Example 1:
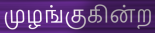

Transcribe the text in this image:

முழங்குகின்ற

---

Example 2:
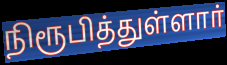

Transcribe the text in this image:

நிரூபித்துள்ளார்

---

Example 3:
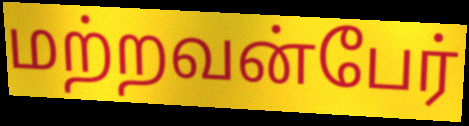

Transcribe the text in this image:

மற்றவன்பேர்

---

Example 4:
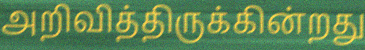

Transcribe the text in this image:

அறிவித்திருக்கின்றது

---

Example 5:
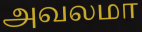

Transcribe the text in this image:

அவலமா